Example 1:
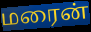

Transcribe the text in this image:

மரைன்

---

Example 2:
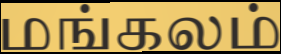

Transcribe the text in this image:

மங்கலம்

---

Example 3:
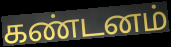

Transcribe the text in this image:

கண்டனம்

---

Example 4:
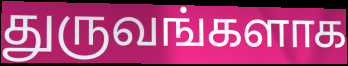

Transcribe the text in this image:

துருவங்களாக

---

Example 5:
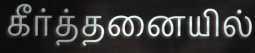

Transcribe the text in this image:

கீர்த்தனையில்